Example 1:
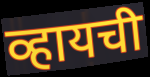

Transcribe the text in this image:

व्हायची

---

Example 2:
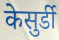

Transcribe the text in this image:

केसुर्डी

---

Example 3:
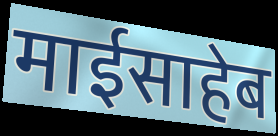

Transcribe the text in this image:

माईसाहेब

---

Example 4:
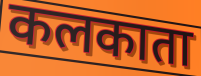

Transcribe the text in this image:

कलकाता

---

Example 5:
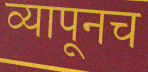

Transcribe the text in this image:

व्यापूनच